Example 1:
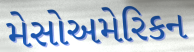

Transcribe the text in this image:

મેસોઅમેરિકન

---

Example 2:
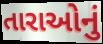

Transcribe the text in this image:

તારાઓનું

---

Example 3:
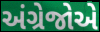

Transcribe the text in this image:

અંગ્રેજોએ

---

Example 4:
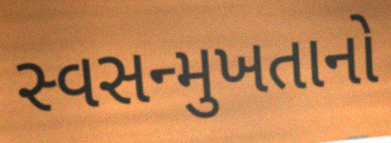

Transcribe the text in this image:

સ્વસન્મુખતાનો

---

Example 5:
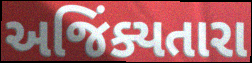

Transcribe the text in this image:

અજિંક્યતારા